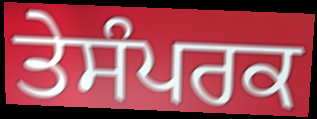
ਤੇਸੰਪਰਕ